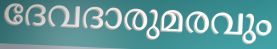
ദേവദാരുമരവും